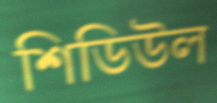
শিডিউল